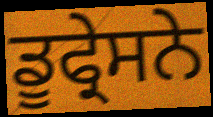
ਡੂਫ੍ਰੇਸਨੇ